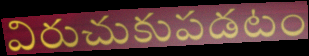
విరుచుకుపడటం